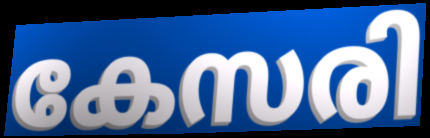
കേസരി